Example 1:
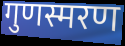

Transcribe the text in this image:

गुणस्मरण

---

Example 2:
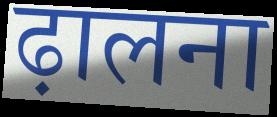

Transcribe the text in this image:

ढ़ालना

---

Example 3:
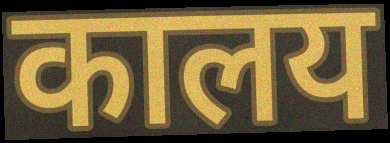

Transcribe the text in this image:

कालय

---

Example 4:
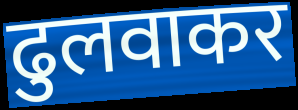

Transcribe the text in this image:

ढुलवाकर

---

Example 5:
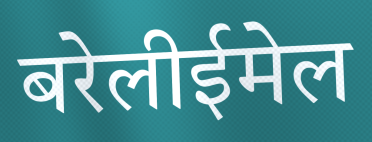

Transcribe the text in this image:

बरेलीईमेल